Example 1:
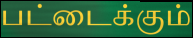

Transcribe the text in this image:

பட்டைக்கும்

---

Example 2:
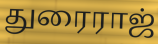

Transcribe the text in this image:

துரைராஜ்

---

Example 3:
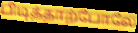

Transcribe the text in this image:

பிடித்தாற்போலே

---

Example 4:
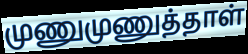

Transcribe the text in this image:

முணுமுணுத்தாள்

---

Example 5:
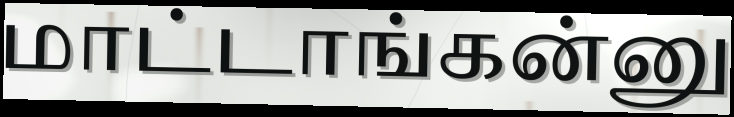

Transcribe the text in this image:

மாட்டாங்கன்னு